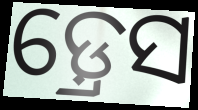
ଡ଼୍ରେସ